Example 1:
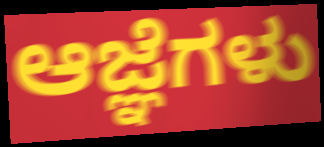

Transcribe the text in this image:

ಆಜ್ಞೆಗಳು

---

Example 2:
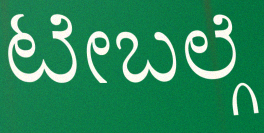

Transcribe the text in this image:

ಟೇಬಲ್ಗೆ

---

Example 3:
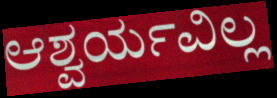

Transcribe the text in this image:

ಆಶ್ವರ್ಯವಿಲ್ಲ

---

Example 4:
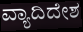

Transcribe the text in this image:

ವ್ಯಾದಿದೇಶ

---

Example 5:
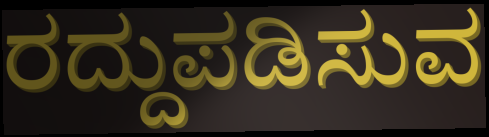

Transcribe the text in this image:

ರದ್ದುಪಡಿಸುವ